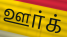
ஊர்க்